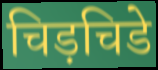
चिड़चिडे